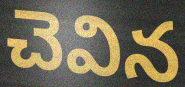
చెవిన